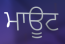
ਮਾਊਟ